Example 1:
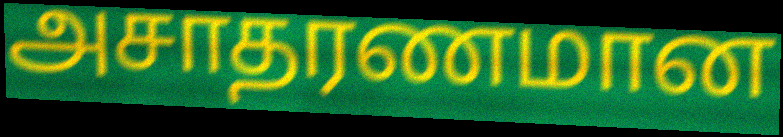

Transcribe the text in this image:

அசாதரணமான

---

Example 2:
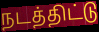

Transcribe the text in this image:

நடத்திட்டு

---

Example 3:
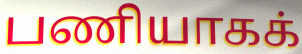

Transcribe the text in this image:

பணியாகக்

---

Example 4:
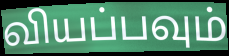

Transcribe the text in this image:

வியப்பவும்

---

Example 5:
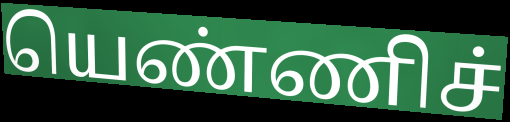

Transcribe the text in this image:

யெண்ணிச்